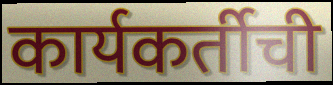
कार्यकर्तीची